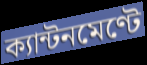
ক্যান্টনমেণ্টে